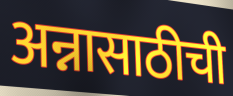
अन्नासाठीची